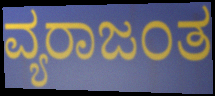
ವ್ಯರಾಜಂತ